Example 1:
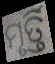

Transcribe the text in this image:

ମୃର୍ତ୍ତି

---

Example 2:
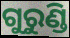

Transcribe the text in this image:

ଗୁରୁଣ୍ଡି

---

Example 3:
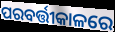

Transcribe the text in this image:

ପରବର୍ତ୍ତୀକାଳରେ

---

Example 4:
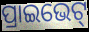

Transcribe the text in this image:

ପ୍ରାଇଭେଟ୍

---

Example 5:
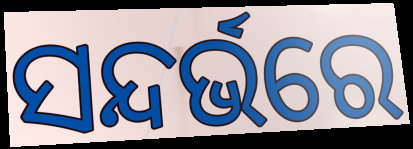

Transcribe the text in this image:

ସନ୍ଦର୍ଭରେ